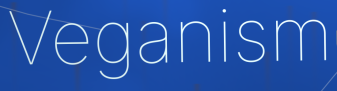
Veganism